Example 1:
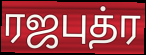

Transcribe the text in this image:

ரஜபுத்ர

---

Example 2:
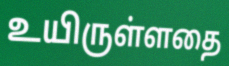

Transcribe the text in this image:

உயிருள்ளதை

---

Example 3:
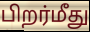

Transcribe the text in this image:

பிறர்மீது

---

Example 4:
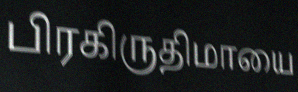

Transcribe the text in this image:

பிரகிருதிமாயை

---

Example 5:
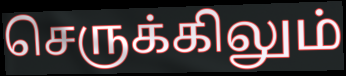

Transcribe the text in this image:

செருக்கிலும்